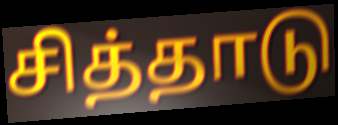
சித்தாடு